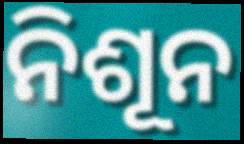
ନିଶୂନ